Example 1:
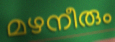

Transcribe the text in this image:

മഴനീരും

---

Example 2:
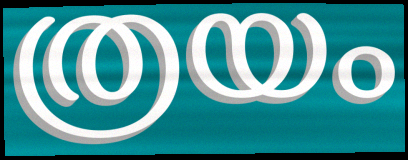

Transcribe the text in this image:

ത്രയം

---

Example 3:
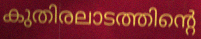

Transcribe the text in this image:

കുതിരലാടത്തിന്റെ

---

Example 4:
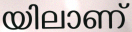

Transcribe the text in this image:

യിലാണ്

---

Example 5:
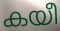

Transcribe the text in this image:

കയീ